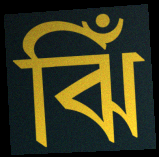
ঝিঁ